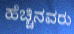
ಹೆಚ್ಚಿನವರು